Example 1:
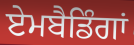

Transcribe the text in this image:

ਏਮਬੈਡਿੰਗਾਂ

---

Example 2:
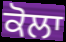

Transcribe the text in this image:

ਕੋਲਾ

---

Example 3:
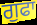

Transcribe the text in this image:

ਗੁਫਾ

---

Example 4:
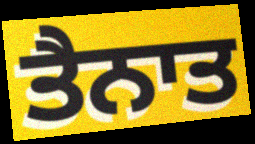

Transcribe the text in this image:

ਤੈਨਾਤ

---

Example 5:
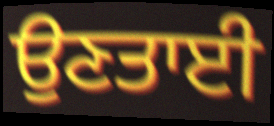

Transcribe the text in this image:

ਉਣਤਾਈ